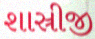
શાસ્રીજી